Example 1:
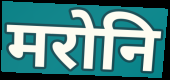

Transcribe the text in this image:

मरोनि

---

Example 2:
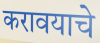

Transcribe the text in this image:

करावयाचे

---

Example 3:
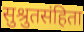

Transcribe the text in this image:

सुश्रुतसंहिता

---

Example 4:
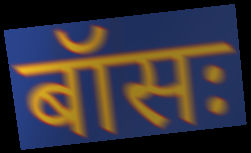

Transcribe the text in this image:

बॉसः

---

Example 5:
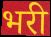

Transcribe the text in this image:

भरी